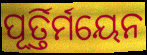
ପୂର୍ତ୍ତିର୍ମୟେନ